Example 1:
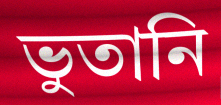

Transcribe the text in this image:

ভুতানি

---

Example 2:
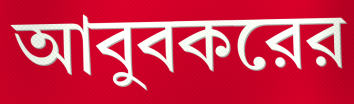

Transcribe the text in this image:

আবুবকরের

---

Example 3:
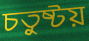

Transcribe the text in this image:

চতুষ্টয়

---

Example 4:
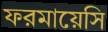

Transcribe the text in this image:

ফরমায়েসি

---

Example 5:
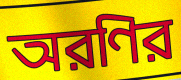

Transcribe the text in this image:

অরণির